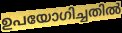
ഉപയോഗിച്ചതിൽ